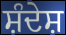
ਸ਼ੰਦੇਸ਼